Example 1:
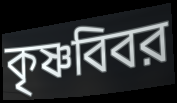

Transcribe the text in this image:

কৃষ্ণবিবর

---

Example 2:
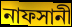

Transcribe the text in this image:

নাফসানী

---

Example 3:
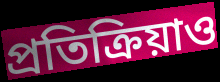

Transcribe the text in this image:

প্রতিক্রিয়াও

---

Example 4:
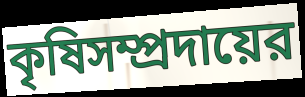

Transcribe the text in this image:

কৃষিসম্প্রদায়ের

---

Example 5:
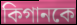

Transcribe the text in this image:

কিগানকে